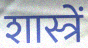
शास्त्रें